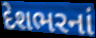
દેશભરનાં